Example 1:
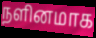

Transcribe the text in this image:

நளினமாக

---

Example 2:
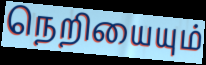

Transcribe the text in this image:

நெறியையும்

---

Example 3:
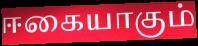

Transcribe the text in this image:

ஈகையாகும்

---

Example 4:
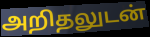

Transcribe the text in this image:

அறிதலுடன்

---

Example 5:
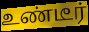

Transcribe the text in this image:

உண்டீர்